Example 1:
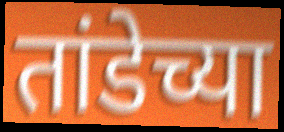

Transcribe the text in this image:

तांडेच्या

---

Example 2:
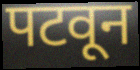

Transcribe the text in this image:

पटवून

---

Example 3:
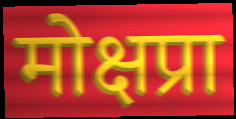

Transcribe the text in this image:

मोक्षप्रा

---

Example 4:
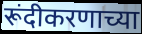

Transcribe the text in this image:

रूंदीकरणाच्या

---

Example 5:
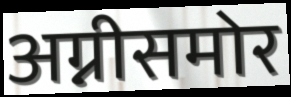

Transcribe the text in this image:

अग्नीसमोर